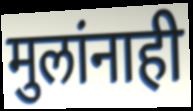
मुलांनाही